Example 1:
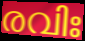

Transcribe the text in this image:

രവിഃ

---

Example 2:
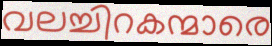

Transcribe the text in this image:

വലച്ചിറകന്മാരെ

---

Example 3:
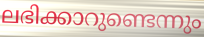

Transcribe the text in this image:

ലഭിക്കാറുണ്ടെന്നും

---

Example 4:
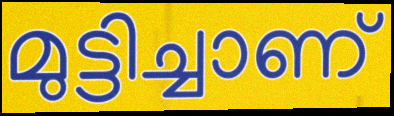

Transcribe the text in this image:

മുട്ടിച്ചാണ്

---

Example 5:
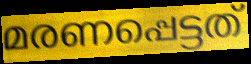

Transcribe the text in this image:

മരണപ്പെട്ടത്